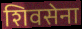
शिवसेना